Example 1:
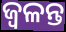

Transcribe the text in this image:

ଜ୍ବଳନ୍ତ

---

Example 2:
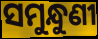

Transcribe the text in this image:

ସମୁନ୍ଧୁଣୀ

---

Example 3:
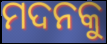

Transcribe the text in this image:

ମଦନକୁ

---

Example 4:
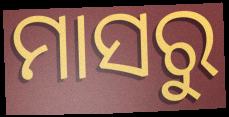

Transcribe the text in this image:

ମାସରୁ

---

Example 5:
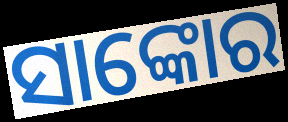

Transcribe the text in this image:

ସାଙ୍କୋର